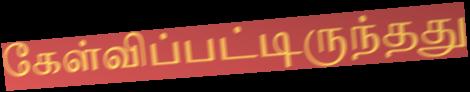
கேள்விப்பட்டிருந்தது